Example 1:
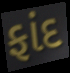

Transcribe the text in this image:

ફાંદ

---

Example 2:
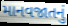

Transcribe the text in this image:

માનવજાતનું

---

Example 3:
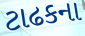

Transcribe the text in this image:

ટાઢકના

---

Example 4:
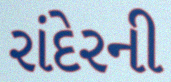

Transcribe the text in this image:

રાંદેરની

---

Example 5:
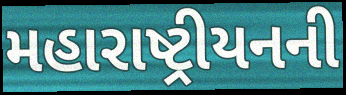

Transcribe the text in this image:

મહારાષ્ટ્રીયનની